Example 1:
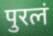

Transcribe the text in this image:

पुरलं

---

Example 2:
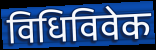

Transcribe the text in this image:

विधिविवेक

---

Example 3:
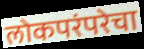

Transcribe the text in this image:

लोकपरंपरेचा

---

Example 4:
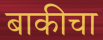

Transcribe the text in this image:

बाकीचा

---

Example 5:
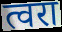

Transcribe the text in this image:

त्वरा